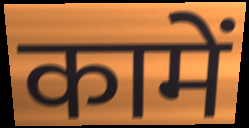
कामें